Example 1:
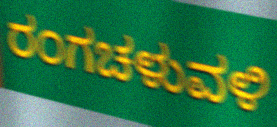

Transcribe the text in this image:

ರಂಗಚಳುವಳಿ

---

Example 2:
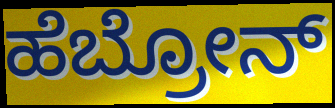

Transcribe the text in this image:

ಹೆಬ್ರೋನ್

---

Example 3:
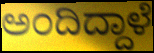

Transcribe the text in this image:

ಅಂದಿದ್ದಾಳೆ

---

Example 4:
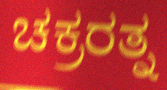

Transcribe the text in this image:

ಚಕ್ರರತ್ನ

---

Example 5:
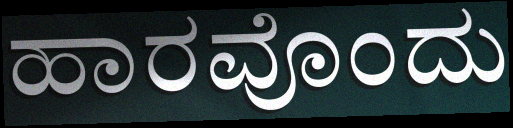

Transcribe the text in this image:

ಹಾರವೊಂದು